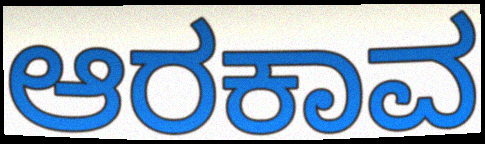
ಆರಕಾವ